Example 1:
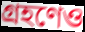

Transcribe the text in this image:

গ্রহণেও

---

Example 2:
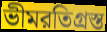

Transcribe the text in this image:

ভীমরতিগ্রস্ত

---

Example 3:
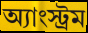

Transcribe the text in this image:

অ্যাংস্ট্রম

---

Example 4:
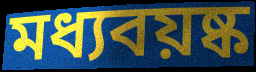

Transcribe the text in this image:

মধ্যবয়ষ্ক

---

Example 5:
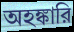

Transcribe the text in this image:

অহঙ্কারি